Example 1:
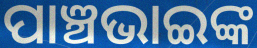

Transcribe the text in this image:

ପାଞ୍ଚଭାଇଙ୍କ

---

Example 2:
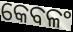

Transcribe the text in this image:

କେବଳଂ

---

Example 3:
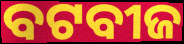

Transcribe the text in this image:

ବଟବୀଜ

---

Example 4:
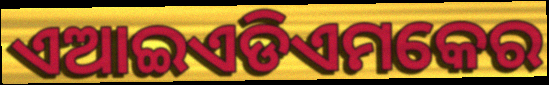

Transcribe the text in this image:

ଏଆଇଏଡିଏମକେର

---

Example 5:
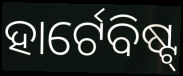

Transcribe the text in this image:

ହାର୍ଟେବିଷ୍ଟ୍